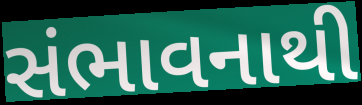
સંભાવનાથી